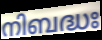
നിബദ്ധഃ